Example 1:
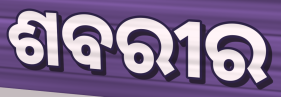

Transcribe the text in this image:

ଶବରୀର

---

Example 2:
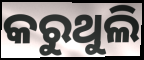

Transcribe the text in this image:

କରୁଥୁଲି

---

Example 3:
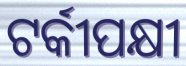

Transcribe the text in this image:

ଟର୍କୀପକ୍ଷୀ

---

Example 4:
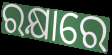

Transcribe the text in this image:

ରକ୍ଷାରେ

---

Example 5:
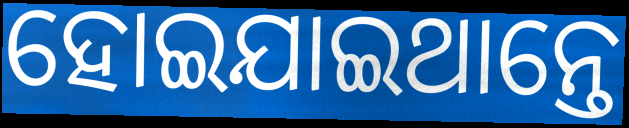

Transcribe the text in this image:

ହୋଇଯାଇଥାନ୍ତେ